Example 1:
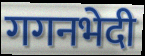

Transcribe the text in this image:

गगनभेदी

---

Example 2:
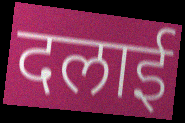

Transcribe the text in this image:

दलाई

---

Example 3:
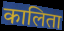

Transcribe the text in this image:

कालिता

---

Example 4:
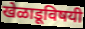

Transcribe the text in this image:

खेळाडूविषयी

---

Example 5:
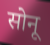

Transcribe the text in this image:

सोनू